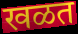
खळत